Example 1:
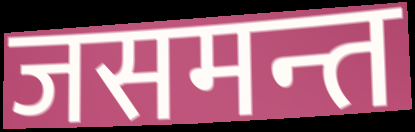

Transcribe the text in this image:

जसमन्त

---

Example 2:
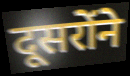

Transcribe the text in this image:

दूसरोंने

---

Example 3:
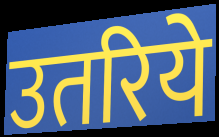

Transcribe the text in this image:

उतरिये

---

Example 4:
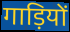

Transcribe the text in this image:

गाड़ियों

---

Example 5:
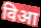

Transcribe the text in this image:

विआ